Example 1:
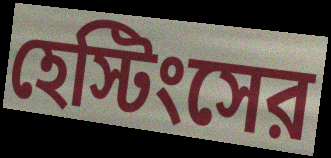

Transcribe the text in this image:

হেস্টিংসের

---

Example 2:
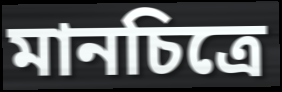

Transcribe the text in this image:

মানচিত্রে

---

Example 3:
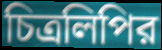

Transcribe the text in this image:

চিত্রলিপির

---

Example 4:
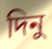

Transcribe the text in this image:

দিনু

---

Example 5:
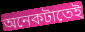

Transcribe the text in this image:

অনেকটাতেই